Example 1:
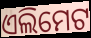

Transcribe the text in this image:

ଏଲିମେଟ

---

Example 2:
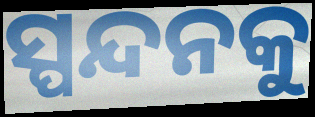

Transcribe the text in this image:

ସ୍ପନ୍ଦନକୁ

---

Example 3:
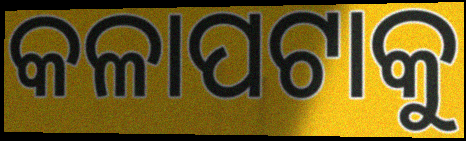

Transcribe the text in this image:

କଳାପଟାକୁ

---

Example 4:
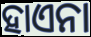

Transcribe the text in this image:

ହାଏନା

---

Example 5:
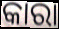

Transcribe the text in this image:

କାରା